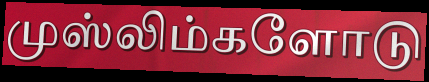
முஸ்லிம்களோடு